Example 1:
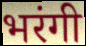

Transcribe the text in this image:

भरंगी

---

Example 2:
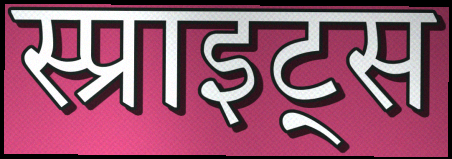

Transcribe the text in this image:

स्प्राइट्स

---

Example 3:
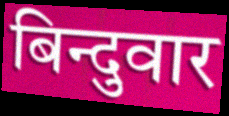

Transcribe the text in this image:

बिन्दुवार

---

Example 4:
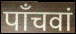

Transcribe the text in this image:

पाँचवां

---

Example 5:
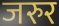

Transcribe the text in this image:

जरुर